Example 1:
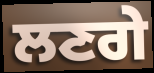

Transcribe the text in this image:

ਲਣਗੇ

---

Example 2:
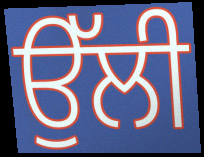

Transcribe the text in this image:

ਉੱਲੀ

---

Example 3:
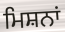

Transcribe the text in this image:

ਮਿਸ਼ਨਾਂ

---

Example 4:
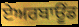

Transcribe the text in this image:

ਏਅਰਬਾਊਂਡ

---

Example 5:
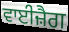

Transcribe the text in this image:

ਵਾਈਜ਼ੈਗ